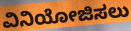
ವಿನಿಯೋಜಿಸಲು